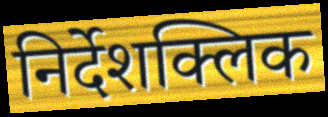
निर्देशक्लिक